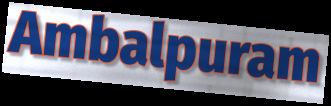
Ambalpuram